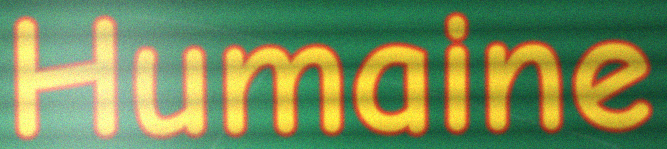
Humaine